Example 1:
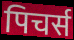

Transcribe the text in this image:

पिचर्स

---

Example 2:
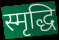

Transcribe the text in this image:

स्मृद्धि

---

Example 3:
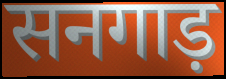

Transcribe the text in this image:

सनगाड़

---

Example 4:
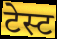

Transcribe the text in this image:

टेस्‍ट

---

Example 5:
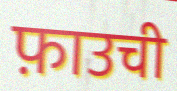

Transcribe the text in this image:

फ़ाउची